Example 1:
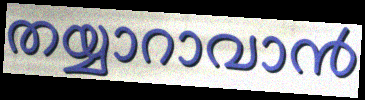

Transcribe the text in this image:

തയ്യാറാവാൻ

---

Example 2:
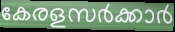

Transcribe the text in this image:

കേരളസർക്കാർ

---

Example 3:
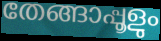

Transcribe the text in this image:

തേങ്ങാപ്പൂളും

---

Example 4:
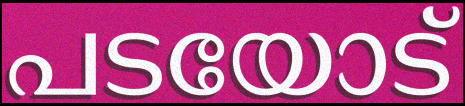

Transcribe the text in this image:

പടയോട്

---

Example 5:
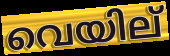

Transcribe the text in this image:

വെയില്